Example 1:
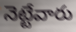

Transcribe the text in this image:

నెట్టేవారు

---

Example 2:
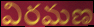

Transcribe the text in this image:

విరమణ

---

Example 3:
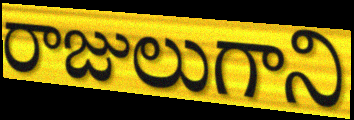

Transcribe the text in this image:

రాజులుగాని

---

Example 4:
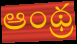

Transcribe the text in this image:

ఆంథ్ర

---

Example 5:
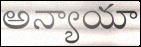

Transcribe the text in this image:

అన్యాయా